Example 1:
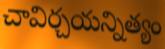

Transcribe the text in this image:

చావిర్చయన్నిత్యం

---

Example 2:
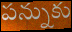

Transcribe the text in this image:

పన్నుకు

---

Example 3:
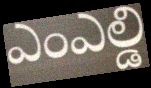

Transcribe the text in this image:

ఎంఎల్డి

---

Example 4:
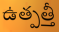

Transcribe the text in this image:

ఉత్పత్తీ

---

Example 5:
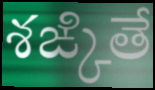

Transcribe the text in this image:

శఙ్కితే